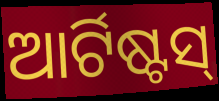
ଆର୍ଟିଷ୍ଟସ୍